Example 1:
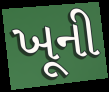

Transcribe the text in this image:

ખૂની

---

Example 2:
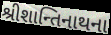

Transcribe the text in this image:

શ્રીશાન્તિનાથના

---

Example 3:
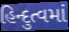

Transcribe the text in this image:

હિન્દુત્વમાં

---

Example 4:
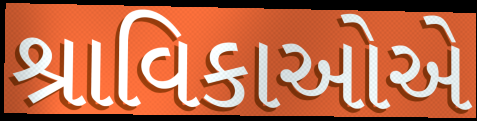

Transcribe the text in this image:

શ્રાવિકાઓએ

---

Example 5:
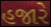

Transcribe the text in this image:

હજારે